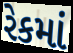
રેકમાં